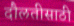
दौलतीसाठी